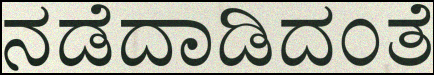
ನಡೆದಾಡಿದಂತೆ